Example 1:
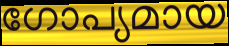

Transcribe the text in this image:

ഗോപ്യമായ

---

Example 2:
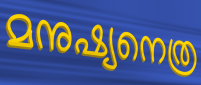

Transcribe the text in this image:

മനുഷ്യനെത്ര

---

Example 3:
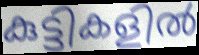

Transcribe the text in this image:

കുട്ടികളിൽ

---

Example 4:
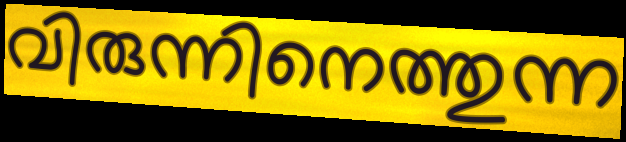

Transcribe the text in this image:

വിരുന്നിനെത്തുന്ന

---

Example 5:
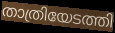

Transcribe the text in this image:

താത്രിയേടത്തി